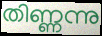
തിണ്ണന്നു